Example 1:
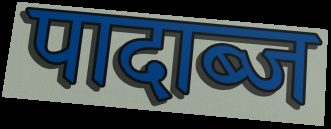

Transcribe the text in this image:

पादाब्ज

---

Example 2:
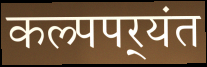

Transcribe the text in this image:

कल्पपर्यंत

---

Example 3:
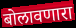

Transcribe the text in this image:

बोलावणारा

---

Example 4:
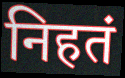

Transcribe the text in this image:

निहतं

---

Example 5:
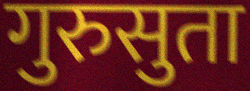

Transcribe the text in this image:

गुरुसुता